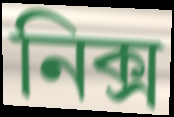
নিক্স